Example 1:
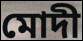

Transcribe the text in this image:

মোদী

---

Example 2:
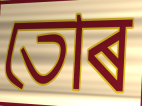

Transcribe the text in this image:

তোৰ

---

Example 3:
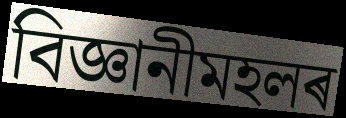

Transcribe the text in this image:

বিজ্ঞানীমহলৰ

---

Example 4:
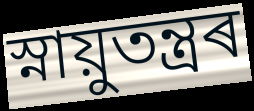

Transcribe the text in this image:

স্নায়ুতন্ত্ৰৰ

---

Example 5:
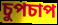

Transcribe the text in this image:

চুপচাপ